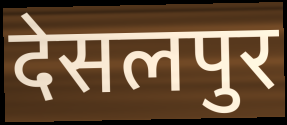
देसलपुर